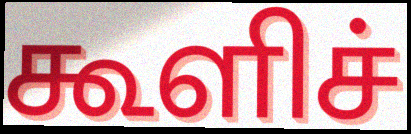
கூளிச்